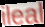
ileal